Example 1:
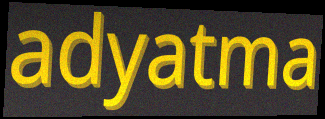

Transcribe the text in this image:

adyatma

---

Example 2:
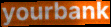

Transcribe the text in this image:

yourbank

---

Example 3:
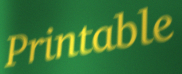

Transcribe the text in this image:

Printable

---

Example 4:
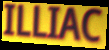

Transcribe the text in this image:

ILLIAC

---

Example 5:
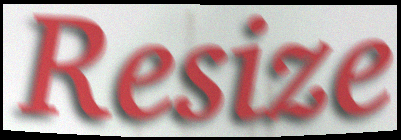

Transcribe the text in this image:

Resize